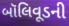
બૉલિવૂડની